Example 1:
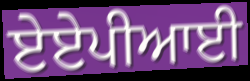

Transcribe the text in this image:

ਏਏਪੀਆਈ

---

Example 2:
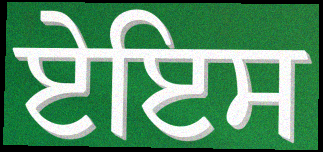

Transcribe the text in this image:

ਏਇਸ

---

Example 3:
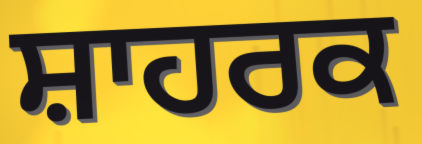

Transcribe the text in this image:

ਸ਼ਾਹਰਕ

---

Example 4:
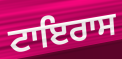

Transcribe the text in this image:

ਟਾਇਰਾਸ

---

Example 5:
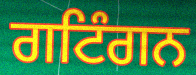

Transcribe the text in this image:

ਗਟਿੰਗਨ